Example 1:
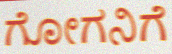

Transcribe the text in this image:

ಗೋಗನಿಗೆ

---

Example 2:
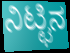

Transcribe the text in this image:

ನಿಟ್ಟಿನ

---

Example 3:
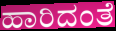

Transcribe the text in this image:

ಹಾರಿದಂತೆ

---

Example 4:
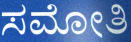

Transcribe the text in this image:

ಸಮೋತಿ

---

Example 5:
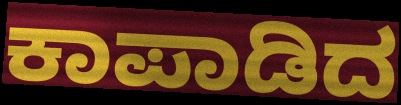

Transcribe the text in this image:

ಕಾಪಾಡಿದ